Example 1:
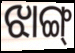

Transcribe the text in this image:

ଝାଙ୍ଗ୍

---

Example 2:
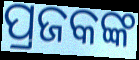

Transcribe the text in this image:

ପ୍ରଜକଙ୍କ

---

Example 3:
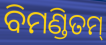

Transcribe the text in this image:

ବିମଣ୍ଡିତମ୍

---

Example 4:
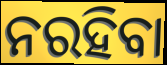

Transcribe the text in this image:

ନରହିବା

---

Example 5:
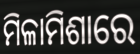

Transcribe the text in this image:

ମିଳାମିଶାରେ